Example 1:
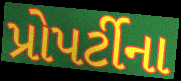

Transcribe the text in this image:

પ્રોપર્ટીના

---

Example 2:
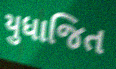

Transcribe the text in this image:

યુધાજિત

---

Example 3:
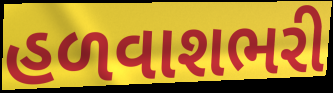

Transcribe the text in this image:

હળવાશભરી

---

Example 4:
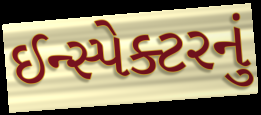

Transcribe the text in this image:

ઈન્સ્પેક્ટરનું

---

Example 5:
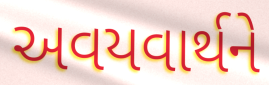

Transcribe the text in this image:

અવયવાર્થને